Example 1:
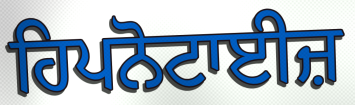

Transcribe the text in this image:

ਹਿਪਨੋਟਾਈਜ਼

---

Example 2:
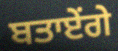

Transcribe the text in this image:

ਬਤਾਏਂਗੇ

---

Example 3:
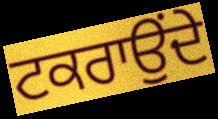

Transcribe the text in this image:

ਟਕਰਾਉਂਦੇ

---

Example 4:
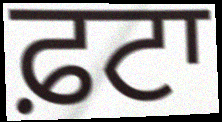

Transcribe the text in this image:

ਫ਼ਟਾ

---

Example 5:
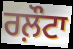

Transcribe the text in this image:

ਰਲ਼ੌਟਾ